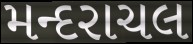
મન્દરાચલ